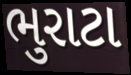
ભુરાટા